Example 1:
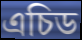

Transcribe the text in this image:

এচিড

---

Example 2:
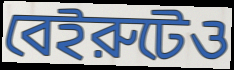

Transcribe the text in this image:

বেইৰুটেও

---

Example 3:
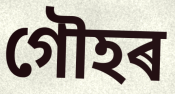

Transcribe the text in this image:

গৌহৰ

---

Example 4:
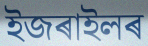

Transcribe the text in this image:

ইজৰাইলৰ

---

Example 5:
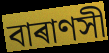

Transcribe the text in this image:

বাৰাণসী